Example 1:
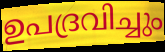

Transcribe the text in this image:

ഉപദ്രവിച്ചും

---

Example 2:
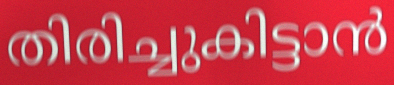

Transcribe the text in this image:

തിരിച്ചുകിട്ടാൻ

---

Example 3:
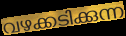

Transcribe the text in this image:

വഴക്കടിക്കുന്ന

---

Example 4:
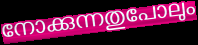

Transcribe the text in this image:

നോക്കുന്നതുപോലും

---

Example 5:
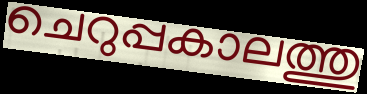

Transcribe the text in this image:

ചെറുപ്പകാലത്തു